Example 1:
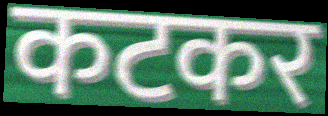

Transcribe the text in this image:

कटकर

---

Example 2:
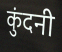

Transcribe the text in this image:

कुंदनी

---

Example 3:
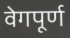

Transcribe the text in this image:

वेगपूर्ण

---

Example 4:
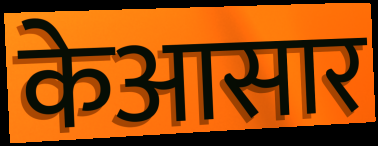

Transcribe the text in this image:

केआसार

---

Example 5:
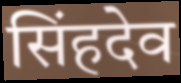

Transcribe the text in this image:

सिंहदेव